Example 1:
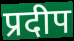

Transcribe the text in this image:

प्रदीप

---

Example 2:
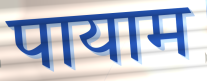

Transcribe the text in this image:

पायाम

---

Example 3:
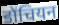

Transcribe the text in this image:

डोंचियन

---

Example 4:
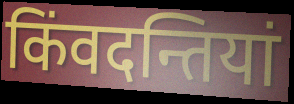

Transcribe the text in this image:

किंवदन्तियां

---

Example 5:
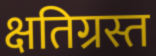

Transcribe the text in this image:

क्षतिग्रस्त